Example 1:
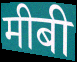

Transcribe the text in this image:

मीबी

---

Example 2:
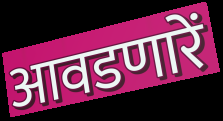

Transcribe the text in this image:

आवडणारें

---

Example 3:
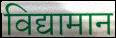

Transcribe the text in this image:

विद्यामान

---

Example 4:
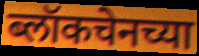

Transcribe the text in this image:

ब्लॉकचेनच्या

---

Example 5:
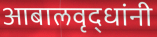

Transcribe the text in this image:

आबालवृद्धांनी